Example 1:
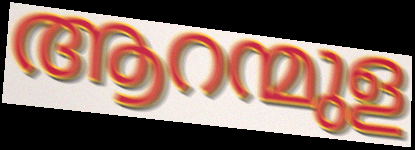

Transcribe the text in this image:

ആറന്മുള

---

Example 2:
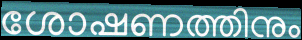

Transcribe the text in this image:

ശോഷണത്തിനും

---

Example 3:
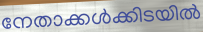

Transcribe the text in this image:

നേതാക്കൾക്കിടയിൽ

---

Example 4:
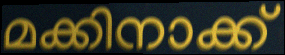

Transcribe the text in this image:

മക്കിനാക്ക്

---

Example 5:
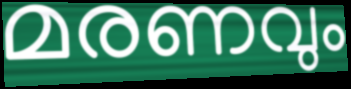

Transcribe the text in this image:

മരണവും